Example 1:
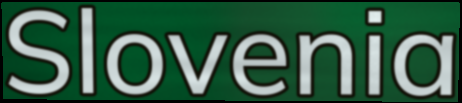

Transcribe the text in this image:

Slovenia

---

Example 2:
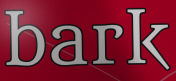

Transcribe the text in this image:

bark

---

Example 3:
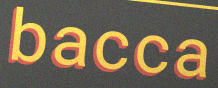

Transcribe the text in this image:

bacca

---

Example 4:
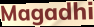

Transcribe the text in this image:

Magadhi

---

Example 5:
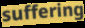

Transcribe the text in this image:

suffering